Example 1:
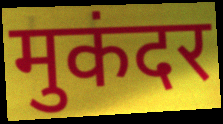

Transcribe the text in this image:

मुकंदर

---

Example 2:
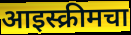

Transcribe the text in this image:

आइस्क्रीमचा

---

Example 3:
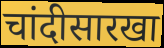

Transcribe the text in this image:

चांदीसारखा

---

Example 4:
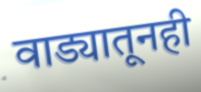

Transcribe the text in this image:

वाड्यातूनही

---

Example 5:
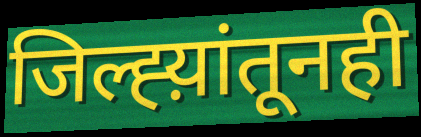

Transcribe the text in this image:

जिल्ह्य़ांतूनही